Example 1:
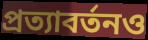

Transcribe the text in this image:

প্রত্যাবর্তনও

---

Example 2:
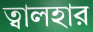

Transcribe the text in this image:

ত্বালহার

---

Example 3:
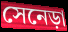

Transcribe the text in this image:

সেনেড়া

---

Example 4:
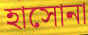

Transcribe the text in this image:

হাসোনা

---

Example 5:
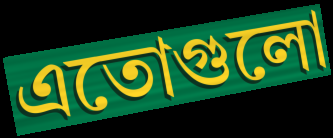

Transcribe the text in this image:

এতোগুলো